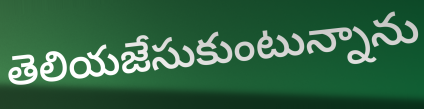
తెలియజేసుకుంటున్నాను